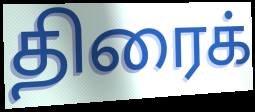
திரைக்